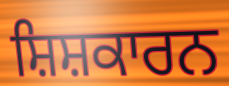
ਸ਼ਿਸ਼ਕਾਰਨ